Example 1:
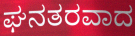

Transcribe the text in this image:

ಘನತರವಾದ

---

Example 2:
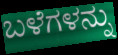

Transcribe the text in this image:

ಬಳೆಗಳನ್ನು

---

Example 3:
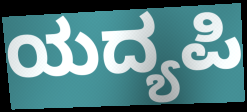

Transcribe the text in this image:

ಯದ್ಯಪಿ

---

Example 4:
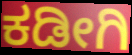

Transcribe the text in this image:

ಕಡೀಗಿ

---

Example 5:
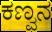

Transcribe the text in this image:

ಕಣ್ವನ